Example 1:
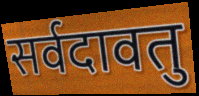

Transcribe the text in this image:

सर्वदावतु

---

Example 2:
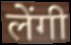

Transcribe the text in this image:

लेंगी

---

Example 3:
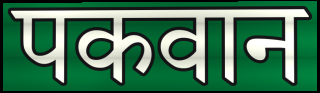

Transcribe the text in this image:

पकवान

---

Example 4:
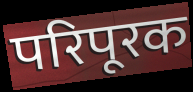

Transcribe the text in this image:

परिपूरक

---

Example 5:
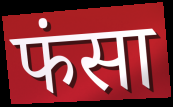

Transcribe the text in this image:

फंसा